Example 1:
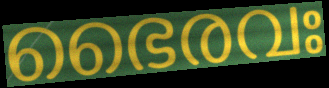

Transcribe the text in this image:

ഭൈരവഃ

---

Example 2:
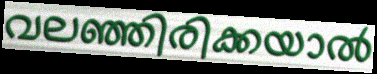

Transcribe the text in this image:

വലഞ്ഞിരിക്കയാൽ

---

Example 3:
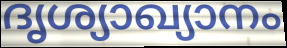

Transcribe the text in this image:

ദൃശ്യാഖ്യാനം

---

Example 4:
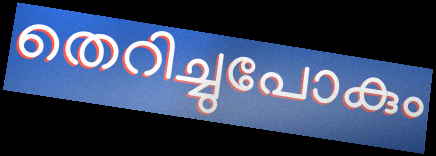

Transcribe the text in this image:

തെറിച്ചുപോകും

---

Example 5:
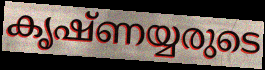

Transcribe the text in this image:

കൃഷ്ണയ്യരുടെ